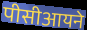
पीसीआयने